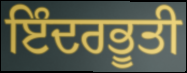
ਇੰਦਰਭੂਤੀ